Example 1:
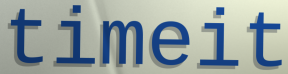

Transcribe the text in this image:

timeit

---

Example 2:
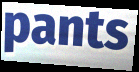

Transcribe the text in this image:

pants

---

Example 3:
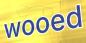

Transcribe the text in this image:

wooed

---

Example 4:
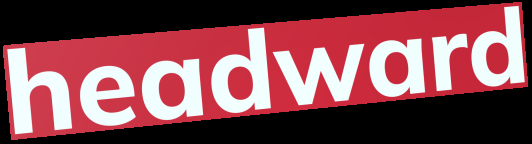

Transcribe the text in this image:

headward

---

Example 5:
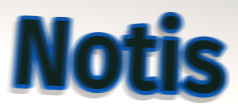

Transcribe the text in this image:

Notis